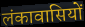
लंकावासियों